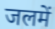
जलमें